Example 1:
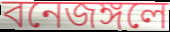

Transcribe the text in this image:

বনেজঙ্গলে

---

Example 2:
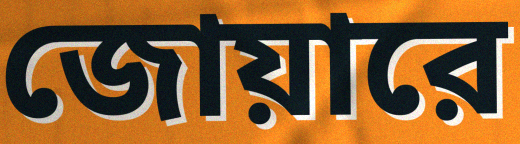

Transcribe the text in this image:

জোয়ারে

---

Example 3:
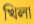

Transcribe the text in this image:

খিলা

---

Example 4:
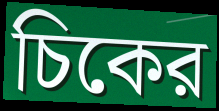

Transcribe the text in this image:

চিকের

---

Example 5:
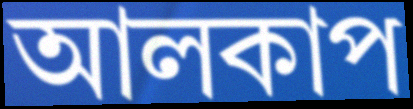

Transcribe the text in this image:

আলকাপ